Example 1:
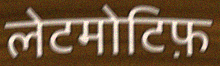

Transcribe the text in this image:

लेटमोटिफ़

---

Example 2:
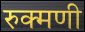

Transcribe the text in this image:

रुक्मणी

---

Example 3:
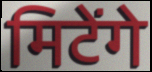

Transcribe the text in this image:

मिटेंगे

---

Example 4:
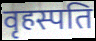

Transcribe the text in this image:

वृहस्पति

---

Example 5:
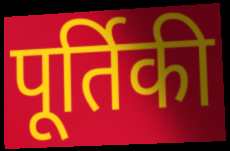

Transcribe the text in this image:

पूर्तिकी